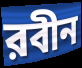
রবীন